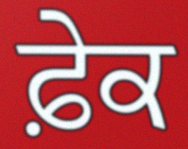
ਫ਼ੇਕ